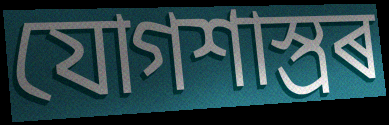
যোগশাস্ত্ৰৰ